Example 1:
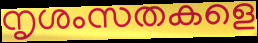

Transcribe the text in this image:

നൃശംസതകളെ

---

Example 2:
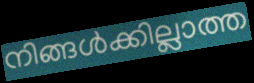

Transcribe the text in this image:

നിങ്ങൾക്കില്ലാത്ത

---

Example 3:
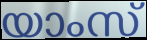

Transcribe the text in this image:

യാംസ്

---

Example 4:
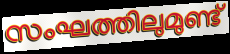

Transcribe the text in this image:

സംഘത്തിലുമുണ്ട്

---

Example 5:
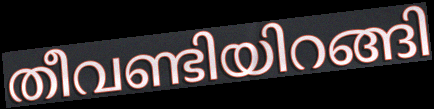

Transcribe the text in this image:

തീവണ്ടിയിറങ്ങി